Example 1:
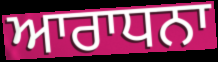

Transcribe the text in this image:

ਆਰਾਧਨਾ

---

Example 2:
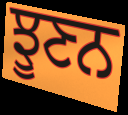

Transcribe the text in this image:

ਝੂਣਨ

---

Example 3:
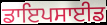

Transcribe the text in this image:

ਡਾਇਪਸਾਈਡ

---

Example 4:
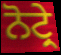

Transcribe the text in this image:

ਨੋਟ੍ਰੇ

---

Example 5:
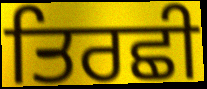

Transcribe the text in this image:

ਤਿਰਛੀ